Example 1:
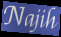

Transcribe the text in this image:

Najih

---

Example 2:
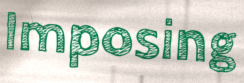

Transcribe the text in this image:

Imposing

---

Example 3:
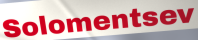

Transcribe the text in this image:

Solomentsev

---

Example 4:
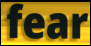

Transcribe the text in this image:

fear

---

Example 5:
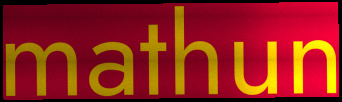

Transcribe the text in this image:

mathun